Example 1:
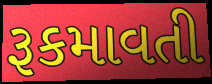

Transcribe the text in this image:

રૂકમાવતી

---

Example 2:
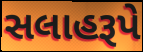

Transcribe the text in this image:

સલાહરૂપે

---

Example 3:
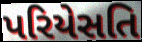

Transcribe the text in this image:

પરિયેસતિ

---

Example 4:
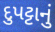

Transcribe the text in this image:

દુપટ્ટાનું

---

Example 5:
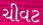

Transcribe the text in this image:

ચીવટ